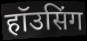
हॉउसिंग